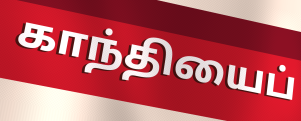
காந்தியைப்